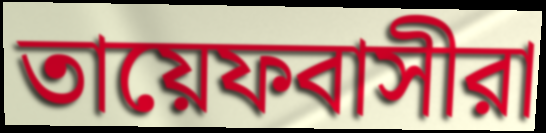
তায়েফবাসীরা